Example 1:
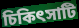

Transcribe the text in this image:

চিকিৎসাটি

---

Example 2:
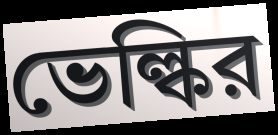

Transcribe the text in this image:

ভেল্কির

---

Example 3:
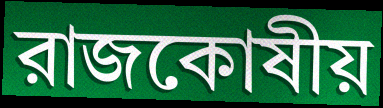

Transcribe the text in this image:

রাজকোষীয়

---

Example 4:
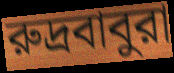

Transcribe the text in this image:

রুদ্রবাবুরা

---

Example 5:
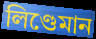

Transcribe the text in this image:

লিণ্ডেমান